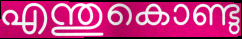
എന്തുകൊണ്ടു